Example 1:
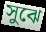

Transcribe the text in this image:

সুঝে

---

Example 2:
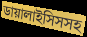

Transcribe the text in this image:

ডায়ালাইসিসসহ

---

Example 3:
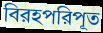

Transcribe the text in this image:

বিরহপরিপূত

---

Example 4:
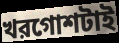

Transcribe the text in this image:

খরগোশটাই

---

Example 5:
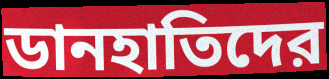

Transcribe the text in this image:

ডানহাতিদের